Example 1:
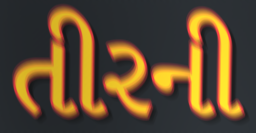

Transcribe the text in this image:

તીરની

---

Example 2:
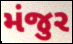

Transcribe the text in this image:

મંજુર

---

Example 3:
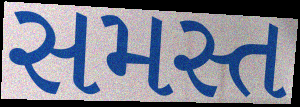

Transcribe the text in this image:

સમસ્ત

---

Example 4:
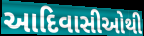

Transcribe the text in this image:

આદિવાસીઓથી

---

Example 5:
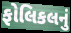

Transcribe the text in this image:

ફોલિકલનું